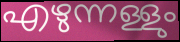
എഴുന്നള്ളും